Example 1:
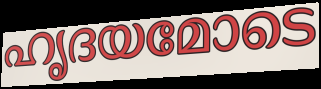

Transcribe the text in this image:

ഹൃദയമോടെ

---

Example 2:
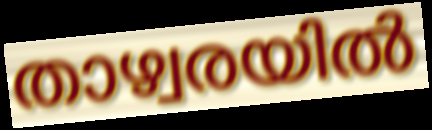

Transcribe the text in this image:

താഴ്വരയിൽ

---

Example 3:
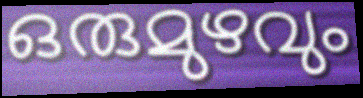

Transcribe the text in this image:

ഒരുമുഴവും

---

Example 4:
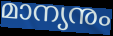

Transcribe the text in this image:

മാന്യനും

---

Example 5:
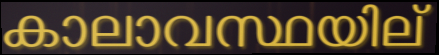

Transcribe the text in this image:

കാലാവസ്ഥയില്